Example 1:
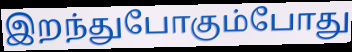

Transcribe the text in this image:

இறந்துபோகும்போது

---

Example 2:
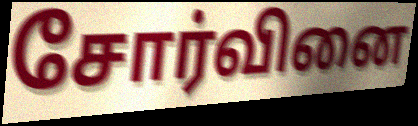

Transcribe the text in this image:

சோர்வினை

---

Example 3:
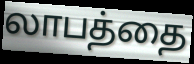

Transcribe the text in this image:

லாபத்தை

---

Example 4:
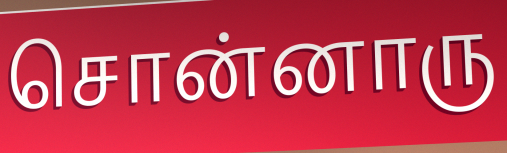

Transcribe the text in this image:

சொன்னாரு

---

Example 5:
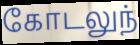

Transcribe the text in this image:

கோடலுந்